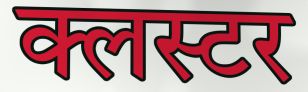
क्‍लस्‍टर